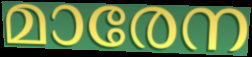
മാരേന